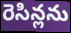
రెసిన్లను